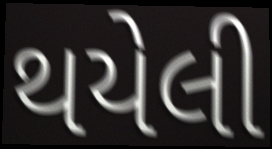
થયેલી